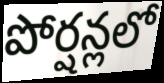
పోర్షన్లలో